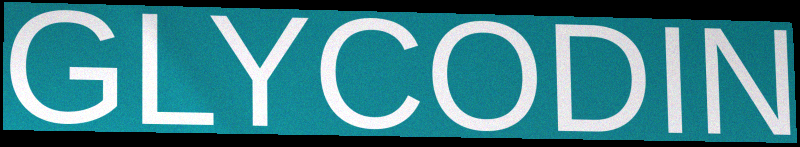
GLYCODIN